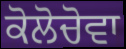
ਕੋਲੋਚੋਵਾ